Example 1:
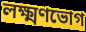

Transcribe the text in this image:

লক্ষ্মণভোগ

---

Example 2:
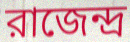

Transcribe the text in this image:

রাজেন্দ্র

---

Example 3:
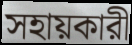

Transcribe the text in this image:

সহায়কারী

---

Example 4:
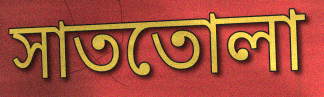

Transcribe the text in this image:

সাততোলা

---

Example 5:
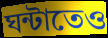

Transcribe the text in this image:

ঘন্টাতেও